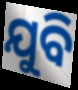
ଯୁବି